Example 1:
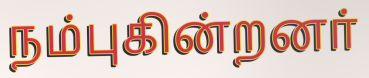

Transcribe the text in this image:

நம்புகின்றனர்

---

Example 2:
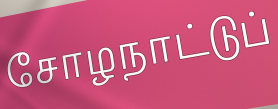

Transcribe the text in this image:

சோழநாட்டுப்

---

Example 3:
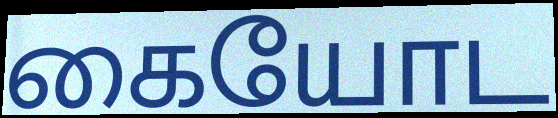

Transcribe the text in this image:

கையோட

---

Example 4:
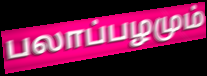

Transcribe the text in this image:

பலாப்பழமும்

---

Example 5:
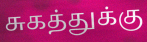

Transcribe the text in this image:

சுகத்துக்கு